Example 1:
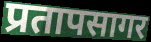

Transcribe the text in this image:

प्रतापसागर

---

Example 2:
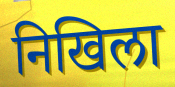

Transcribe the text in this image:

निखिला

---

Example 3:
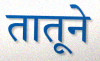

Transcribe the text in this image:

तातूने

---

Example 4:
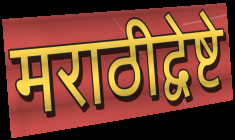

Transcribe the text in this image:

मराठीद्वेष्टे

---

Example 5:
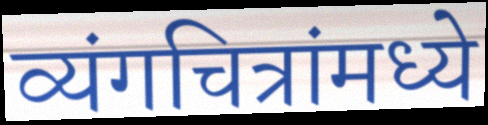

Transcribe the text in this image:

व्यंगचित्रांमध्ये